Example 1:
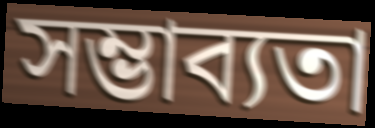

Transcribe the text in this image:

সম্ভাব্যতা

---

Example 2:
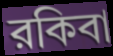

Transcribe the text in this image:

রকিবা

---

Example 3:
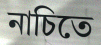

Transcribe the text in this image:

নাচিতে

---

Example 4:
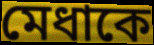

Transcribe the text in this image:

মেধাকে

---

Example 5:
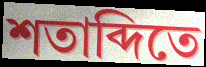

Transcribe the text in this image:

শতাব্দিতে